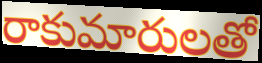
రాకుమారులతో